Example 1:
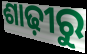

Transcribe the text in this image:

ଶାଢ଼ୀରୁ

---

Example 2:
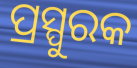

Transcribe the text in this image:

ପ୍ରସ୍ପୁରକ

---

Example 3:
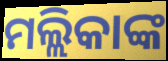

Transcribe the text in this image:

ମଲ୍ଲିକାଙ୍କ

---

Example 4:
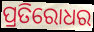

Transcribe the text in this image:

ପ୍ରତିରୋଧର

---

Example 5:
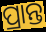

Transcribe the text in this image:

ପ୍ରାନ୍ତ